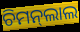
ଚିମନ୍‍ଲାଲ